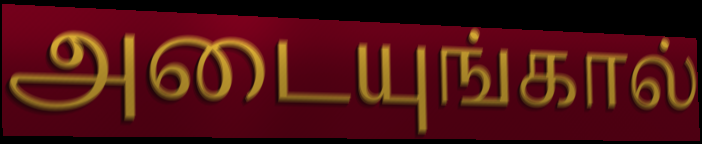
அடையுங்கால்